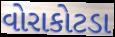
વોરાકોટડા